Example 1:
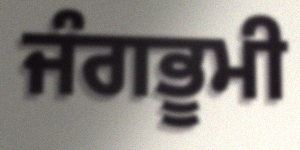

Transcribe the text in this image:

ਜੰਗਭੂਮੀ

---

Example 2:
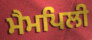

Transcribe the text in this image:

ਮੈਮਪਿਲੀ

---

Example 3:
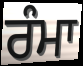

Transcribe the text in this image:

ਰੰਮਾ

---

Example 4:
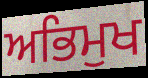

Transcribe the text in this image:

ਅਭਿਮੁਖ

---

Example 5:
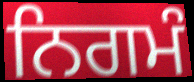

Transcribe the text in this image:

ਨਿਗਮੰ